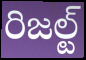
రిజల్ట్